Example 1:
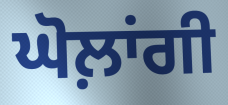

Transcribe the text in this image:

ਘੋਲ਼ਾਂਗੀ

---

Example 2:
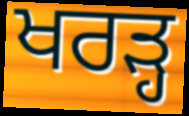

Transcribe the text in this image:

ਖਰੜ੍ਹ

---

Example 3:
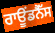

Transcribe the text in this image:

ਰਾਊਂਡਨੈੱਸ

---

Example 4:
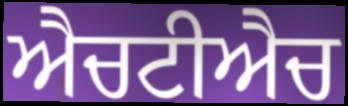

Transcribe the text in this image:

ਐਚਟੀਐਚ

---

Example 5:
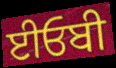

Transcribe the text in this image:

ਈਓਬੀ